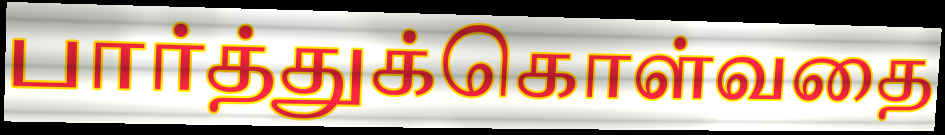
பார்த்துக்கொள்வதை